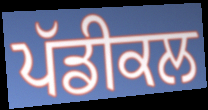
ਪੱਡੀਕਲ